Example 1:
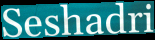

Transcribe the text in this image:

Seshadri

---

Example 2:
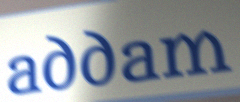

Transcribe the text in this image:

addam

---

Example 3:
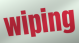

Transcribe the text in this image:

wiping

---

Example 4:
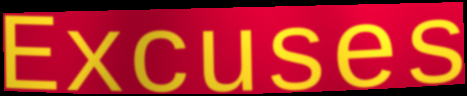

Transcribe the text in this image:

Excuses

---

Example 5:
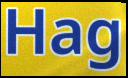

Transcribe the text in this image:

Hag